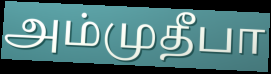
அம்முதீபா